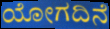
ಯೋಗದಿನೆ